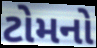
ટોમનો